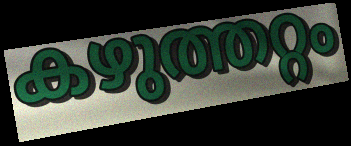
കഴുത്തറ്റം